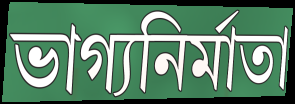
ভাগ্যনির্মাতা